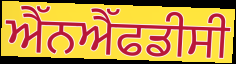
ਐੱਨਐੱਫਡੀਸੀ